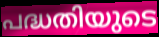
പദ്ധതിയുടെ